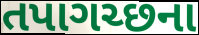
તપાગચ્છના